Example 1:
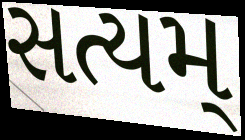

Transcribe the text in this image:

સત્યમ્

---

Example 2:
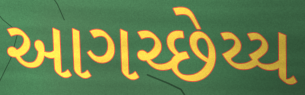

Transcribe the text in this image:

આગચ્છેય્ય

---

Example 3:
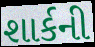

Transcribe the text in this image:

શાર્કની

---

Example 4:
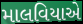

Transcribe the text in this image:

માલવિયાએ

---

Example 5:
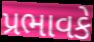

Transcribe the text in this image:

પ્રભાવકે